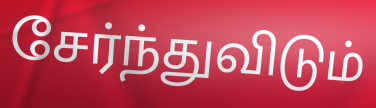
சேர்ந்துவிடும்